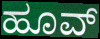
ಹೂವ್